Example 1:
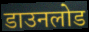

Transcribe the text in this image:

डाउनलोड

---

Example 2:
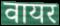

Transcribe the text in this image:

वायर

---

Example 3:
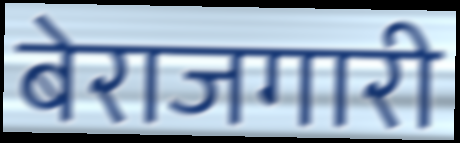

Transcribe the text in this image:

बेराजगारी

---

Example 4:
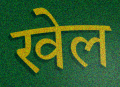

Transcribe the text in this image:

खेल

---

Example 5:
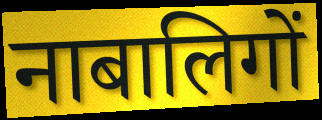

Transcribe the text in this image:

नाबालिगों